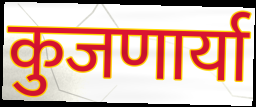
कुजणार्या